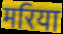
मरिया